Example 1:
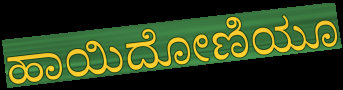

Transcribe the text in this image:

ಹಾಯಿದೋಣಿಯೂ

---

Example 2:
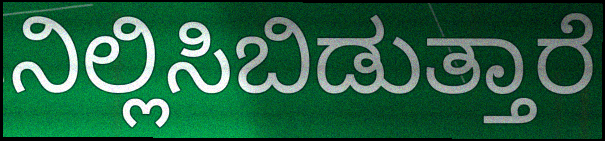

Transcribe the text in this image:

ನಿಲ್ಲಿಸಿಬಿಡುತ್ತಾರೆ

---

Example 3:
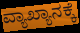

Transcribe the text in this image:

ವ್ಯಾಖ್ಯಾನಕ್ಕೆ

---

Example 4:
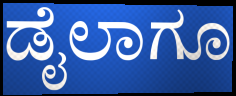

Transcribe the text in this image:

ಡೈಲಾಗೂ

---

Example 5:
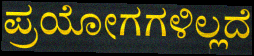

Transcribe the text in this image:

ಪ್ರಯೋಗಗಳಿಲ್ಲದೆ